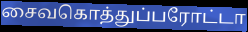
சைவகொத்துப்பரோட்டா